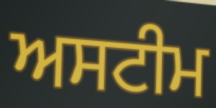
ਅਸਟੀਮ